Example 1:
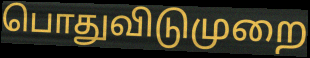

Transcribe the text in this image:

பொதுவிடுமுறை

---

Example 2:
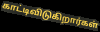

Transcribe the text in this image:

காட்டிவிடுகிறார்கள்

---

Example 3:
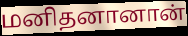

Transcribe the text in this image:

மனிதனானான்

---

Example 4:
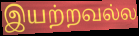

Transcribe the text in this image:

இயற்றவல்ல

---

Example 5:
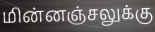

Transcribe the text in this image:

மின்னஞ்சலுக்கு